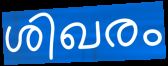
ശിഖരം